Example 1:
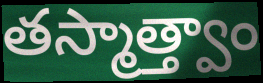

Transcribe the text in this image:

తస్మాత్త్వాం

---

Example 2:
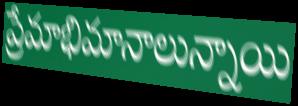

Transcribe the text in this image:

ప్రేమాభిమానాలున్నాయి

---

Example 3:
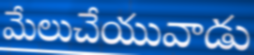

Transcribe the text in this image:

మేలుచేయువాడు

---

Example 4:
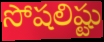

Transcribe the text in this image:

సోషలిష్టు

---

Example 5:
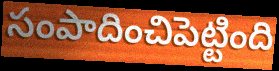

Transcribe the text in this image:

సంపాదించిపెట్టింది